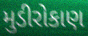
મુડીરોકાણ